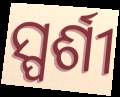
ସ୍ପର୍ଶୀ